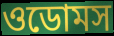
ওডোমস